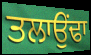
ਤਲਾਉਂਢਾ